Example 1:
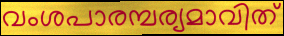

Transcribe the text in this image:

വംശപാരമ്പര്യമാവിത്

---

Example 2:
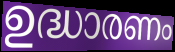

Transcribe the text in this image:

ഉദ്ധാരണം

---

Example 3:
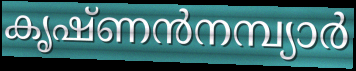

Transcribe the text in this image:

കൃഷ്ണൻനമ്പ്യാർ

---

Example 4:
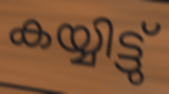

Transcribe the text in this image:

കയ്യിട്ടു്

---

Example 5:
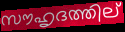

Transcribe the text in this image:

സൗഹൃദത്തില്